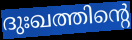
ദുഃഖത്തിന്റെ